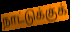
நாட்டுக்குக்